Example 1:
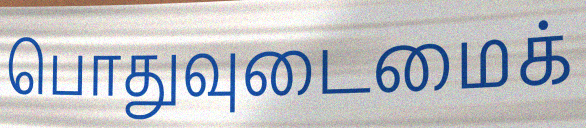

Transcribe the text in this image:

பொதுவுடைமைக்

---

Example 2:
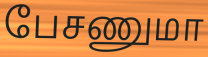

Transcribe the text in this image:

பேசணுமா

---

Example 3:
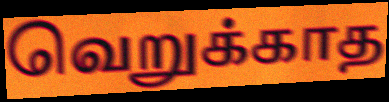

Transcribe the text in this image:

வெறுக்காத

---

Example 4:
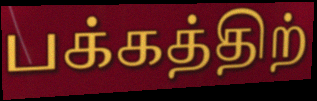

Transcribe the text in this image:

பக்கத்திற்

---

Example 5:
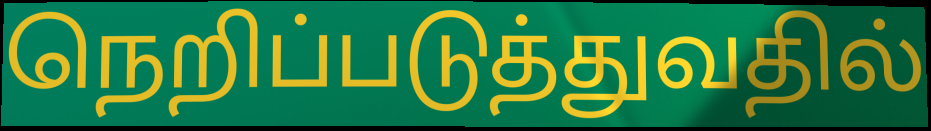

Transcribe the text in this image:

நெறிப்படுத்துவதில்